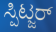
ಸ್ಪಿಟ್ಜರ್